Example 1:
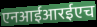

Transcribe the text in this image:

एनआईआरईएच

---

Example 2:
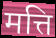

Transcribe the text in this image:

मत्ति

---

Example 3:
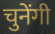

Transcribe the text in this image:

चुनेंगी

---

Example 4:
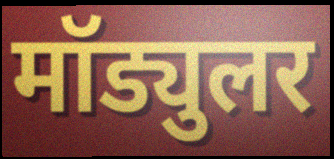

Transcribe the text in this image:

मॉड्युलर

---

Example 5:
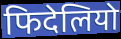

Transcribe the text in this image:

फिदेलियो